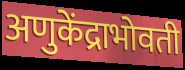
अणुकेंद्राभोवती